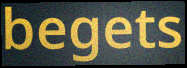
begets